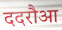
ददरौआ